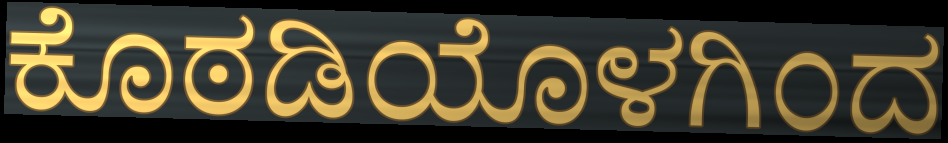
ಕೊಠಡಿಯೊಳಗಿಂದ